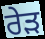
ਰੇੜ